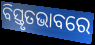
ବିସ୍ତୃତଭାବରେ